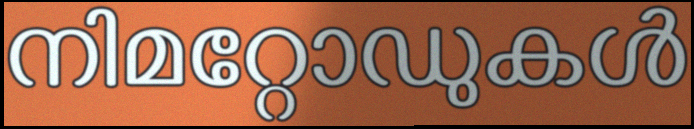
നിമറ്റോഡുകൾ